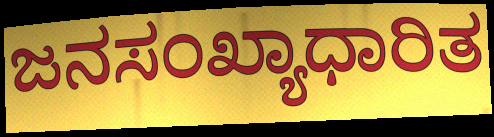
ಜನಸಂಖ್ಯಾಧಾರಿತ